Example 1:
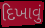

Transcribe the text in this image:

દિખાવું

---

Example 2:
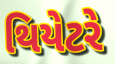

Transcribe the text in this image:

થિયેટરે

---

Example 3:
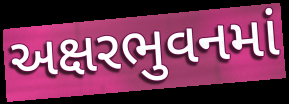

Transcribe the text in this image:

અક્ષરભુવનમાં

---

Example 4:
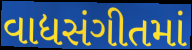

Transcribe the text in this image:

વાદ્યસંગીતમાં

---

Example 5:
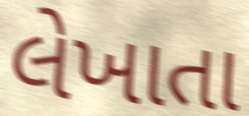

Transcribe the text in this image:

લેખાતા